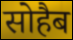
सोहैब